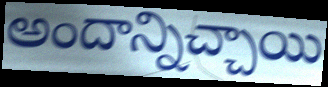
అందాన్నిచ్చాయి